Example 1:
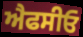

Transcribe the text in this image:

ਐਫਸੀਓ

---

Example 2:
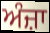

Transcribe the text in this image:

ਅੰਜ਼ਾ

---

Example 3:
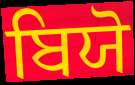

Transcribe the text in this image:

ਬਿਯੋ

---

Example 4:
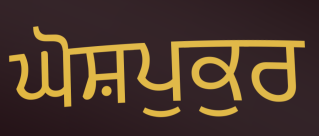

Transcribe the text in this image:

ਘੋਸ਼ਪੁਕੁਰ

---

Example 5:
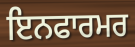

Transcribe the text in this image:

ਇਨਫਾਰਮਰ